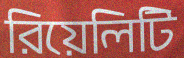
রিয়েলিটি